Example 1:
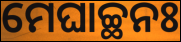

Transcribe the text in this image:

ମେଘାଚ୍ଛନଃ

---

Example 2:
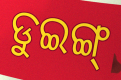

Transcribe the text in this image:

ଡୁଇଙ୍ଗ୍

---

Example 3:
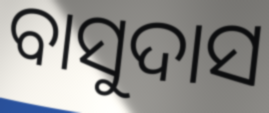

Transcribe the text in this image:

ବାସୁଦାସ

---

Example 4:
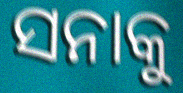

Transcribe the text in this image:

ସନାକୁ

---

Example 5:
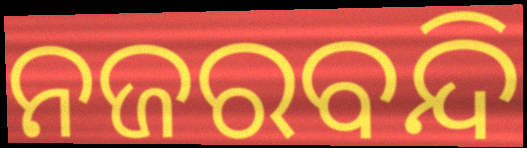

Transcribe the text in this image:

ନଜରବନ୍ଦି